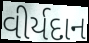
વીર્યદાન